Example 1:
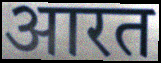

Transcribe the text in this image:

आरत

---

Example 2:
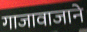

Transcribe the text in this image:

गाजावाजाने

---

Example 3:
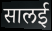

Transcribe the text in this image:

सालई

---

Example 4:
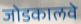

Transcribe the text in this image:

जोडकालवे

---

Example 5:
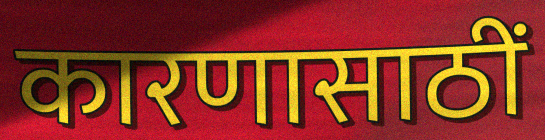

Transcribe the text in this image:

कारणासाठीं